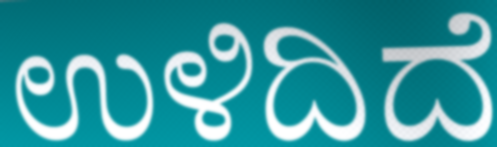
ಉಳಿದಿದೆ